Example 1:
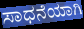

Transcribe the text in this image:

ಸಾಧನೆಯಾಗಿ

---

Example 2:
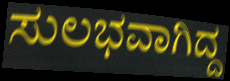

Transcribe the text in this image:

ಸುಲಭವಾಗಿದ್ದ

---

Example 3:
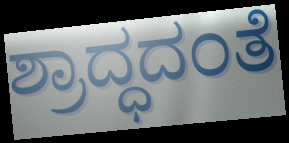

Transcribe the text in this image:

ಶ್ರಾದ್ಧದಂತೆ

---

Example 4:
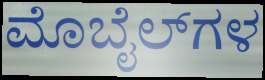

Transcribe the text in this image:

ಮೊಬೈಲ್‌ಗಳ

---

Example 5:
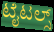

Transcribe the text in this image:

ಟೈಟಲ್ಸ್